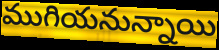
ముగియనున్నాయి